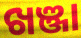
ଖଞ୍ଜା